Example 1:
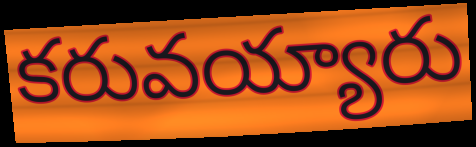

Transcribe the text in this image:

కరువయ్యారు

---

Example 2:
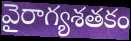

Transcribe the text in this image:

వైరాగ్యశతకం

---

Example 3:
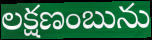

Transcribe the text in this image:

లక్షణంబును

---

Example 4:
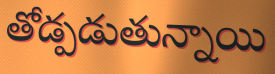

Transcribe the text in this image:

తోడ్పడుతున్నాయి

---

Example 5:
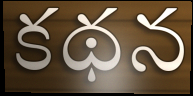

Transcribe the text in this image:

కథన